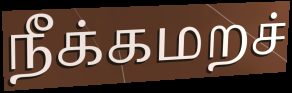
நீக்கமறச்